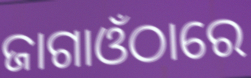
ଜାଗାଓଁଠାରେ